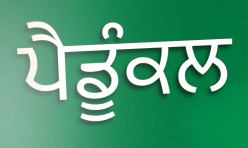
ਪੈਡੂੰਕਲ